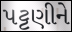
પટ્ટણીને